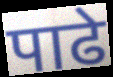
पाढे